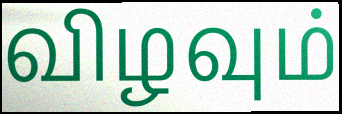
விழவும்